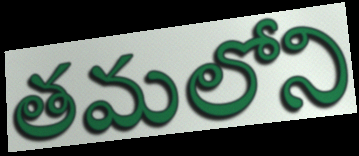
తమలోని